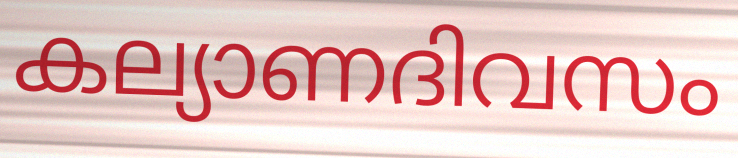
കല്യാണദിവസം